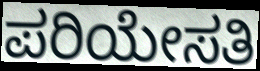
ಪರಿಯೇಸತಿ